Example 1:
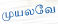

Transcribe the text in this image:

முயலவே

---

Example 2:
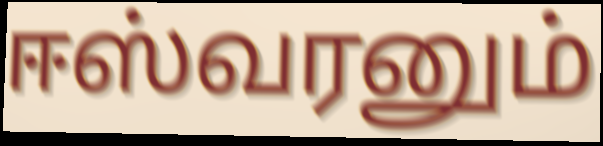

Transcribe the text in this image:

ஈஸ்வரனும்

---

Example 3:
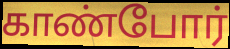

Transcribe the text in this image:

காண்போர்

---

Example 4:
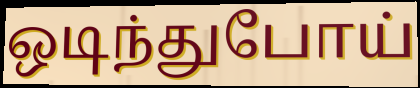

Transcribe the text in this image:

ஒடிந்துபோய்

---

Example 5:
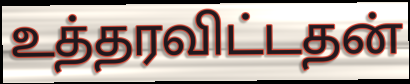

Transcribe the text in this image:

உத்தரவிட்டதன்